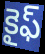
కైఫ్